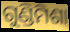
ଗୁଣ୍ଡିମିଶା